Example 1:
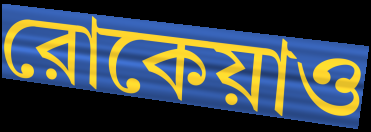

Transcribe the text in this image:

রোকেয়াও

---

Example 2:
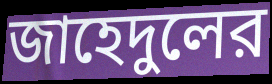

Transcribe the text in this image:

জাহেদুলের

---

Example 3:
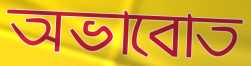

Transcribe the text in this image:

অভাবোত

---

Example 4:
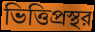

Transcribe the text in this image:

ভিত্তিপ্রস্থর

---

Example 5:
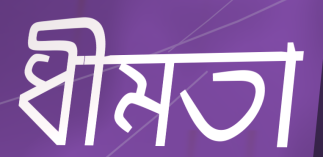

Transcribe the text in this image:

ধীমতা